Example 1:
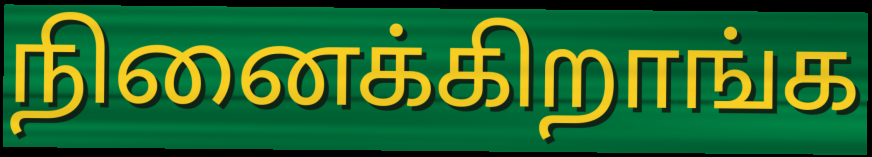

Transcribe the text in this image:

நினைக்கிறாங்க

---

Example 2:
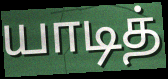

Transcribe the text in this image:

யாடித்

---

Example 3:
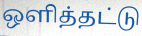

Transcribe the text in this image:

ஒளித்தட்டு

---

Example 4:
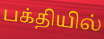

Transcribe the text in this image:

பக்தியில்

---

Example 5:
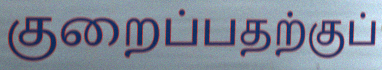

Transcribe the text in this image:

குறைப்பதற்குப்